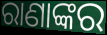
ରାଣାଙ୍କର